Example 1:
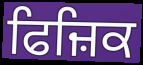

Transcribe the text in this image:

ਫਿਜ਼ਿਕ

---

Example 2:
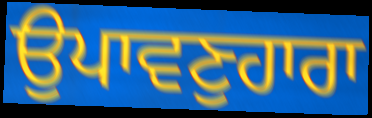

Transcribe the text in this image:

ਉਪਾਵਣੁਹਾਰਾ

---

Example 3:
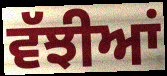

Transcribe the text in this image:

ਵੱਝੀਆਂ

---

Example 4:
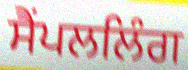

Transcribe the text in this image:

ਸੈਂਪਲਲਿੰਗ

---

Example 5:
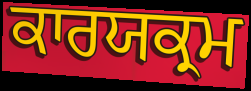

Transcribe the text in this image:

ਕਾਰਯਕ੍ਰਮ